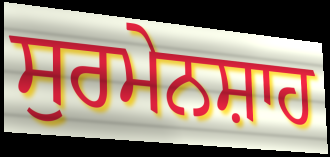
ਸੁਰਮੇਨਸ਼ਾਹ